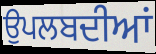
ਉਪਲਬਦੀਆਂ